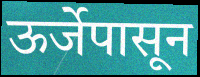
ऊर्जेपासून